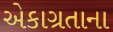
એકાગ્રતાના